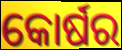
କୋର୍ଷର